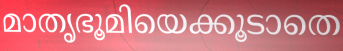
മാതൃഭൂമിയെക്കൂടാതെ